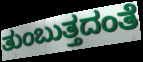
ತುಂಬುತ್ತದಂತೆ